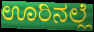
ಊರಿನಲ್ಲೆ